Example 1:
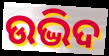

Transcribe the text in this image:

ଉଦ୍ଭିଦ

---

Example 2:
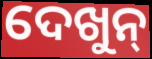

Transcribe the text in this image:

ଦେଖୁନ୍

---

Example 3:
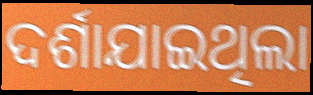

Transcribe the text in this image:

ଦର୍ଶାଯାଇଥିଲା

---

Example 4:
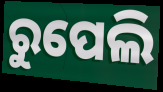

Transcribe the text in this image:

ରୁପେଲି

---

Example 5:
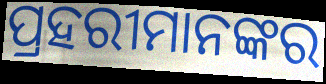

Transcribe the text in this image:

ପ୍ରହରୀମାନଙ୍କର